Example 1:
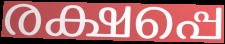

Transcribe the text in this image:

രക്ഷപ്പെ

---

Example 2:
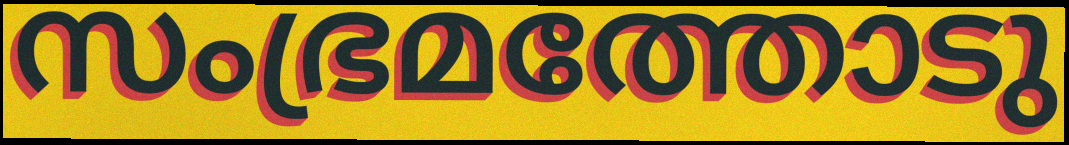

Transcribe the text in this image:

സംഭ്രമത്തോടു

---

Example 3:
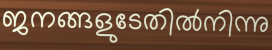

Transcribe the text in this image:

ജനങ്ങളുടേതിൽനിന്നു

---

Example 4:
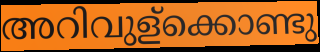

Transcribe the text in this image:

അറിവുള്ക്കൊണ്ടു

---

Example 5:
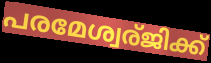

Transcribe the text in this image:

പരമേശ്വര്ജിക്ക്